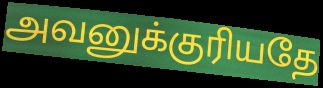
அவனுக்குரியதே